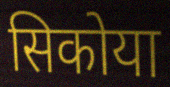
सिकोया